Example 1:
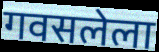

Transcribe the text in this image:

गवसलेला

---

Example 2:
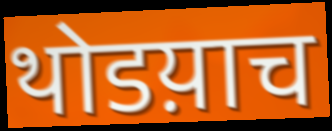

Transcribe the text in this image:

थोडय़ाच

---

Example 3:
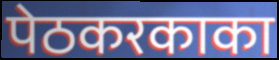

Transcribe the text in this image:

पेठकरकाका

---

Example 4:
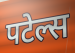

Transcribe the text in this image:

पटेल्स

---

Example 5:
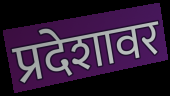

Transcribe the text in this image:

प्रदेशावर